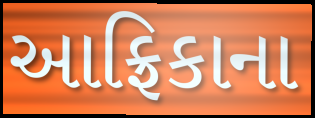
આફ્રિકાના